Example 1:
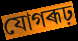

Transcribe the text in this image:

যোগৰূঢ়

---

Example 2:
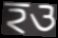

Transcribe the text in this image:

হও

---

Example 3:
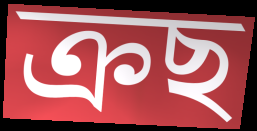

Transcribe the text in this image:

ক্ৰছ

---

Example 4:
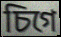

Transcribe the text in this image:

চিগে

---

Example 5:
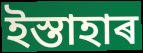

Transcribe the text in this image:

ইস্তাহাৰ